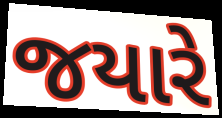
જયારે